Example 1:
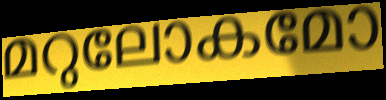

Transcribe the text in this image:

മറുലോകമോ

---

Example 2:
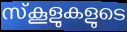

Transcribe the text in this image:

സ്‌കൂളുകളുടെ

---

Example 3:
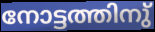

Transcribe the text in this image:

നോട്ടത്തിനു്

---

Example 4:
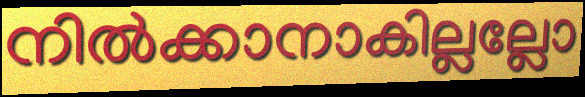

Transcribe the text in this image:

നിൽക്കാനാകില്ലല്ലോ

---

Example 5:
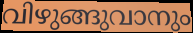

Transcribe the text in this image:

വിഴുങ്ങുവാനും